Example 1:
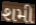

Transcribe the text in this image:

શમી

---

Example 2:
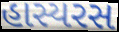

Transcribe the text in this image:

હાસ્યરસ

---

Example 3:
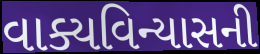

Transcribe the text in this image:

વાક્યવિન્યાસની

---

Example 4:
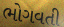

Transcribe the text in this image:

ભોગવતી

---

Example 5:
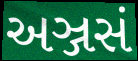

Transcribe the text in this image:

અઞ્જસં